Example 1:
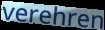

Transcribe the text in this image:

verehren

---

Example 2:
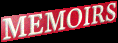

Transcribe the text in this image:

MEMOIRS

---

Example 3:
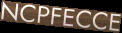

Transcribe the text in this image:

NCPFECCE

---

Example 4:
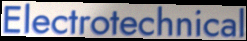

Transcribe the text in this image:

Electrotechnical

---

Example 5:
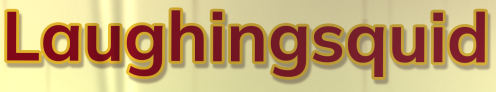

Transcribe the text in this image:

Laughingsquid